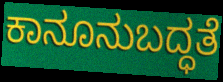
ಕಾನೂನುಬದ್ಧತೆ